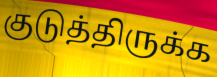
குடுத்திருக்க